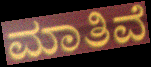
ಮಾತಿವೆ